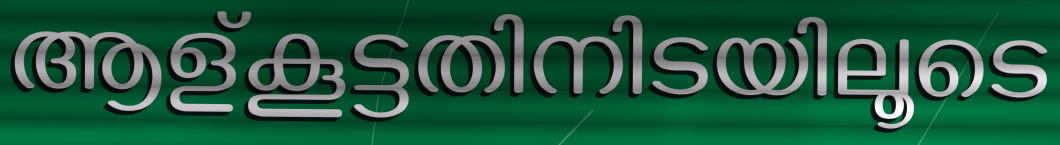
ആള്കൂട്ടതിനിടയിലൂടെ